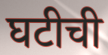
घटीची